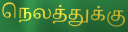
நெலத்துக்கு